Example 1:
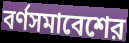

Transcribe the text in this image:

বর্ণসমাবেশের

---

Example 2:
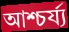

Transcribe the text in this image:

আশ্চর্য্য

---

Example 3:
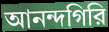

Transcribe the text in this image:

আনন্দগিরি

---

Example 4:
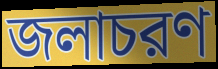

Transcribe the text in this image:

জলাচরণ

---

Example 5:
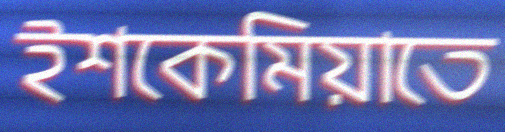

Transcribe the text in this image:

ইশকেমিয়াতে